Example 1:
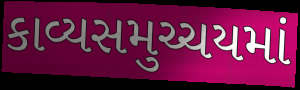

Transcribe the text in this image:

કાવ્યસમુચ્ચયમાં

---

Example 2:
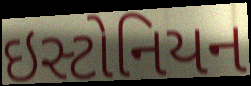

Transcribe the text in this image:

ઇસ્ટોનિયન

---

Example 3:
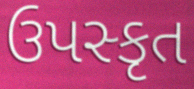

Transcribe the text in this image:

ઉપસ્કૃત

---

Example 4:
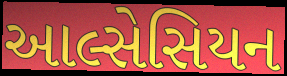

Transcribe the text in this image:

આલ્સેસિયન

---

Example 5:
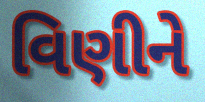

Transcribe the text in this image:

વિણીને